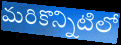
మరికొన్నిటిలో